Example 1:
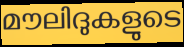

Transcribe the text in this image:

മൗലിദുകളുടെ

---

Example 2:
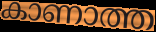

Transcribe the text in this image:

കാണാത്ത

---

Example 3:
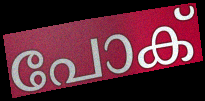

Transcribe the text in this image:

പോക്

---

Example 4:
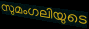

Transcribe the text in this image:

സുമംഗലിയുടെ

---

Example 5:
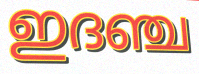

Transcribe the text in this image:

ഇദഞ്ച